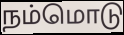
நம்மொடு